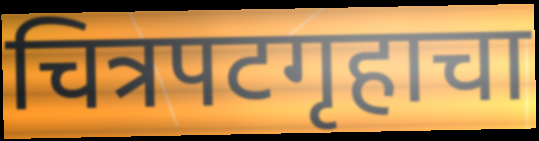
चित्रपटगृहाचा